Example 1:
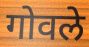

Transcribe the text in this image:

गोवले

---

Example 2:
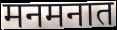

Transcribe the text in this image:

मनमनात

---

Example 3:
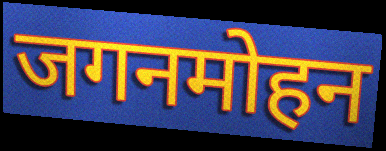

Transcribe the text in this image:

जगनमोहन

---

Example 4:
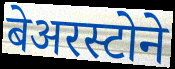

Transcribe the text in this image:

बेअरस्टोने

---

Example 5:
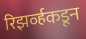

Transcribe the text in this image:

रिझर्व्हकडून